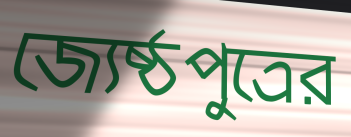
জ্যেষ্ঠপুত্রের